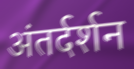
अंतर्दर्शन